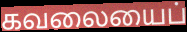
கவலையைப்